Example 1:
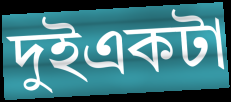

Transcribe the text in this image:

দুইএকটা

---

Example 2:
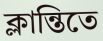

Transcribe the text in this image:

ক্লান্তিতে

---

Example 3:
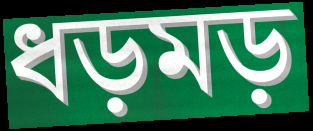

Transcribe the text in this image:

ধড়মড়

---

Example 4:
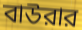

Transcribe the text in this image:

বাউরার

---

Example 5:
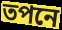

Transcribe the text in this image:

তপনে